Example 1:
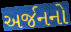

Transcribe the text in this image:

અર્જનનો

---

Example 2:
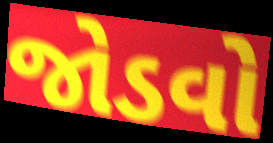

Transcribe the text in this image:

જોડવો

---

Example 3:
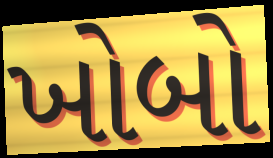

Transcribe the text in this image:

ખોબો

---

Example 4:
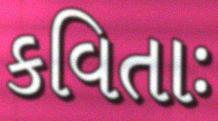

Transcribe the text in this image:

કવિતાઃ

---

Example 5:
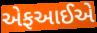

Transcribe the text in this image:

એફઆઈએ